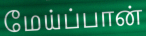
மேய்ப்பான்